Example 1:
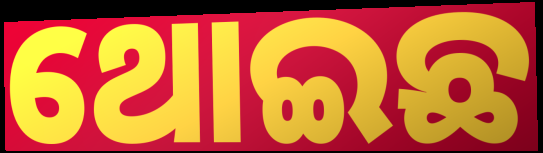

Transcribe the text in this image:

ଥୋଇଛ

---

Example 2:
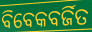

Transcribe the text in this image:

ବିବେକବର୍ଜିତ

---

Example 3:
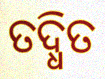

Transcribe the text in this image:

ତଦ୍ଧିତ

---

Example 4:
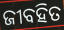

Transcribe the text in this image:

ଜୀବହିତ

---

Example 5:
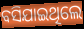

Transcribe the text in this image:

ବସିଯାଇଥିଲେ